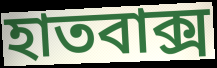
হাতবাক্স